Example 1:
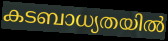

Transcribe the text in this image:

കടബാധ്യതയിൽ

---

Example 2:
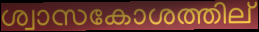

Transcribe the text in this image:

ശ്വാസകോശത്തില്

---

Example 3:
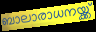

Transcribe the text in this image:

ബാലാരാധനയ്ക്ക്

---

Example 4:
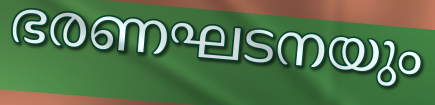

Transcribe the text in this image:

ഭരണഘടനയും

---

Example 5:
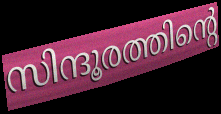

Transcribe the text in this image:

സിന്ദൂരത്തിന്റെ